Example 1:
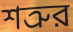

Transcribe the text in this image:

শত্রুর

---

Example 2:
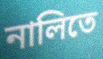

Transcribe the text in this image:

নালিতে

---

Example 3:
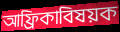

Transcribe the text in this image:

আফ্রিকাবিষয়ক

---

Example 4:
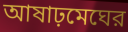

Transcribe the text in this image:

আষাঢ়মেঘের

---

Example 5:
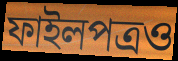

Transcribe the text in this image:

ফাইলপত্রও